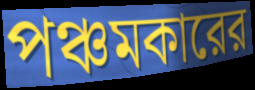
পঞ্চমকারের